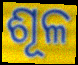
ଶୂଳ